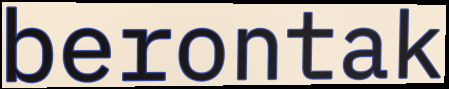
berontak